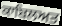
ਕਾਬਿਲਅਤ